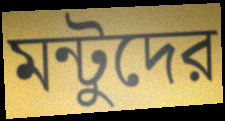
মন্টুদের